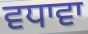
ਵਧਾਵਾ